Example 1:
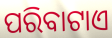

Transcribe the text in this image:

ପରିବାଟାଏ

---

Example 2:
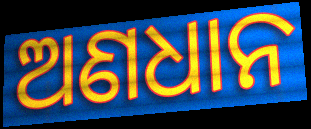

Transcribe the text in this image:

ଅଣଧାନ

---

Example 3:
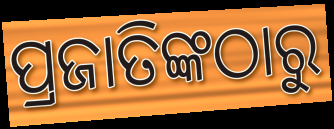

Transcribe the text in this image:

ପ୍ରଜାତିଙ୍କଠାରୁ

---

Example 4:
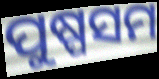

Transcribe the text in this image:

ପୁଷ୍ପସମ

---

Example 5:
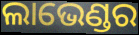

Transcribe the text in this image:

ଲାଭେଣ୍ଡର